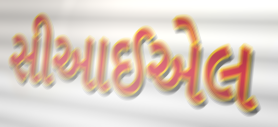
સીઆઈએલ